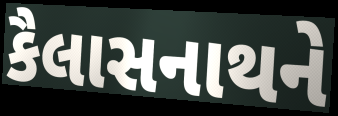
કૈલાસનાથને